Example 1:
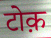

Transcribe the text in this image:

टोक़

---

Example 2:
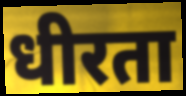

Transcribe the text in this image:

धीरता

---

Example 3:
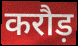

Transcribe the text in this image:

करौड़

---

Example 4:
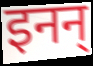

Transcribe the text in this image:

इनन्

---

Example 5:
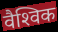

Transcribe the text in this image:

वैश्‍विक